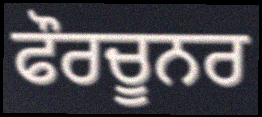
ਫੌਰਚੂਨਰ